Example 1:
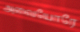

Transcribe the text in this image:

அவையோரே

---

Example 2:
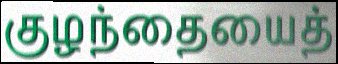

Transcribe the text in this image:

குழந்தையைத்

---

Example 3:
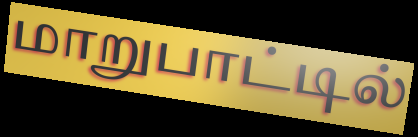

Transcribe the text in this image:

மாறுபாட்டில்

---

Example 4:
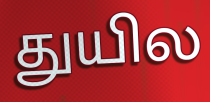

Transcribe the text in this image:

துயில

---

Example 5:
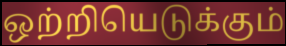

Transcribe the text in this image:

ஒற்றியெடுக்கும்